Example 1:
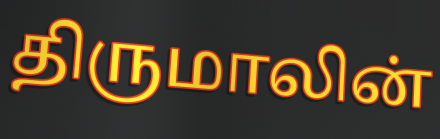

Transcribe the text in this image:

திருமாலின்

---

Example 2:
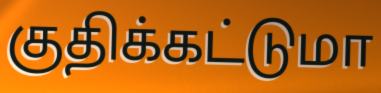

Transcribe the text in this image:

குதிக்கட்டுமா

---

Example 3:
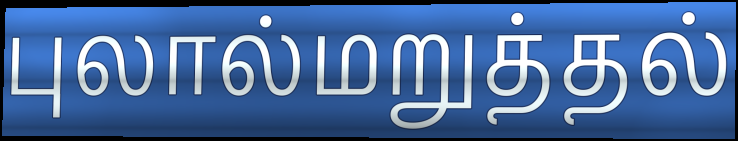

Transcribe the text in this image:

புலால்மறுத்தல்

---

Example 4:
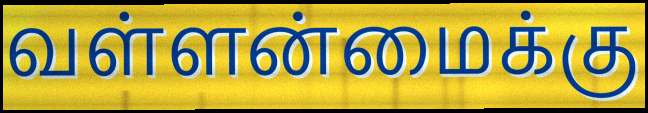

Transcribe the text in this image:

வள்ளன்மைக்கு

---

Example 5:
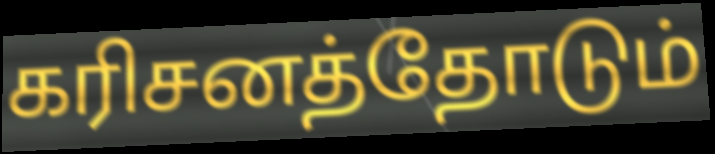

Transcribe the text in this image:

கரிசனத்தோடும்